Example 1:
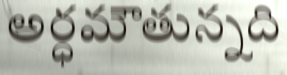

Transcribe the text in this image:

అర్ధమౌతున్నది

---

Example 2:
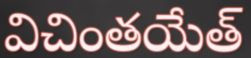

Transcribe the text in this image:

విచింతయేత్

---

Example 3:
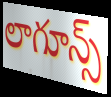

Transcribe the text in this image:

లాగూన్స్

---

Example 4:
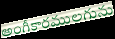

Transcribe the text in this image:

అంగీకారములగును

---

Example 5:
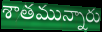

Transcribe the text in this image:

శాతమున్నారు